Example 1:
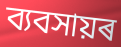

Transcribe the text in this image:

ব্যবসায়ৰ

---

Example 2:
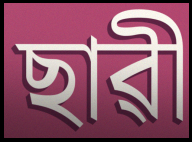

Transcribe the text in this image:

ছাৱী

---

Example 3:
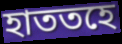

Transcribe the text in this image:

হাততহে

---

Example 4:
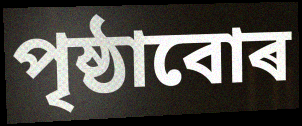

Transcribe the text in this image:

পৃষ্ঠাবোৰ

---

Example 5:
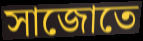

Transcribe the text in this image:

সাজোতে